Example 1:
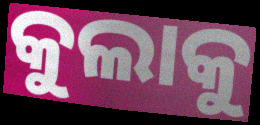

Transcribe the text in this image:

କୁଲାକୁ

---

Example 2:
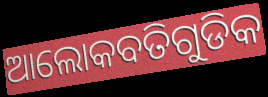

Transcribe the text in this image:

ଆଲୋକବତିଗୁଡିକ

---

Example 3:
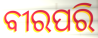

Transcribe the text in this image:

ବୀରପରି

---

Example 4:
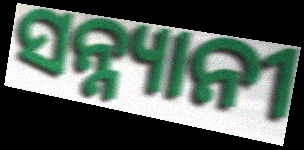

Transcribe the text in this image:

ସନ୍ନ୍ୟାନୀ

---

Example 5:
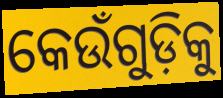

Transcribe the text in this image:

କେଉଁଗୁଡ଼ିକୁ